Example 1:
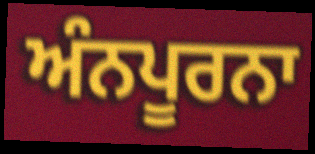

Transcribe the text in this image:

ਅੰਨਪੂਰਨਾ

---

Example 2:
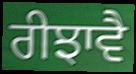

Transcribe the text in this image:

ਰੀਝਾਵੈ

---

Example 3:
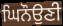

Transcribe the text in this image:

ਘਿਨੌਉਣੀ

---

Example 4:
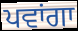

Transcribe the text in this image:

ਪਵਾਂਗਾ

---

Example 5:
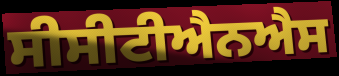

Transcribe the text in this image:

ਸੀਸੀਟੀਐਨਐਸ